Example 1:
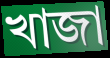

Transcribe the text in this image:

খাজা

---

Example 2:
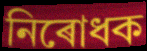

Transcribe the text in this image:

নিৰোধক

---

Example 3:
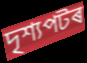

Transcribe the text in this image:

দৃশ্যপটৰ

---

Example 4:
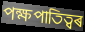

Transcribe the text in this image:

পক্ষপাতিত্বৰ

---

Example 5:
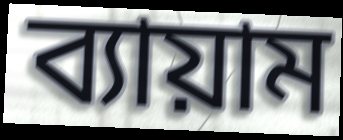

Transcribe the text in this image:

ব্যায়াম